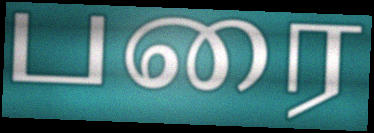
பரை